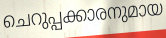
ചെറുപ്പക്കാരനുമായ